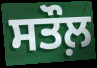
ਸਤੌਲ਼